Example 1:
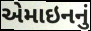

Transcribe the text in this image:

એમાઇનનું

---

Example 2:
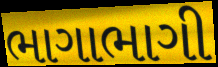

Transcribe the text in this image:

ભાગાભાગી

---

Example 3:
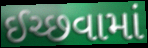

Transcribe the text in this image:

ઈચ્છવામાં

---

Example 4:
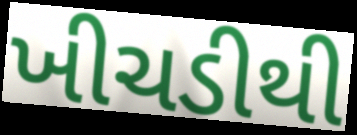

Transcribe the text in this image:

ખીચડીથી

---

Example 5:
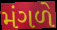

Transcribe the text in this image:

મંગળે